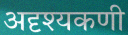
अदृश्यकणी